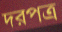
দরপত্র